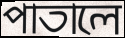
পাতালে